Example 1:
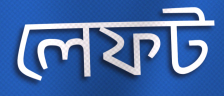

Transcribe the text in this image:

লেফট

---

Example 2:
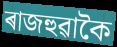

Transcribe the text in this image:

ৰাজহুৱাকৈ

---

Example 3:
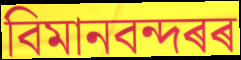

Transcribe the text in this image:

বিমানবন্দৰৰ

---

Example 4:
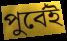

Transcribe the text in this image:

পুৰ্বেই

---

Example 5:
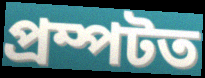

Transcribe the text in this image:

প্ৰম্পটত